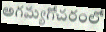
అగమ్యగోచరంలో